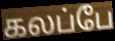
கலப்பே